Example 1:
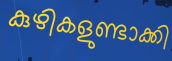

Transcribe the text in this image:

കുഴികളുണ്ടാക്കി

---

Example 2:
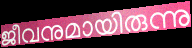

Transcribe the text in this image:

ജീവനുമായിരുന്നു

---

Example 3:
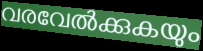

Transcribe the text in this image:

വരവേൽക്കുകയും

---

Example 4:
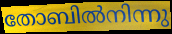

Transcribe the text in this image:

തോബിൽനിന്നു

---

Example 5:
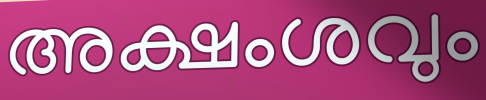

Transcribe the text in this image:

അക്ഷംശവും